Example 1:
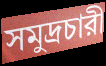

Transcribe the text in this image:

সমুদ্রচারী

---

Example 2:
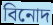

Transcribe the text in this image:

বিনোদ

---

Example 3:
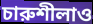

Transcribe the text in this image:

চারুশীলাও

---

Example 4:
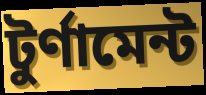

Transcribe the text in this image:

টুর্ণামেন্ট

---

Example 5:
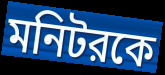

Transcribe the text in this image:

মনিটরকে